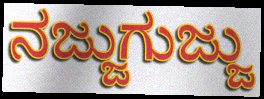
ನಜ್ಜುಗುಜ್ಜು